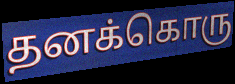
தனக்கொரு